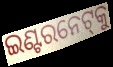
ଇଣ୍ଟରନେଟ୍‌କୁ